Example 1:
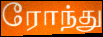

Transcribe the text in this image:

ரோந்து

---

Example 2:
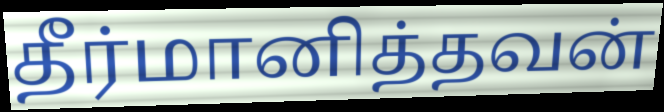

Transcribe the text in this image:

தீர்மானித்தவன்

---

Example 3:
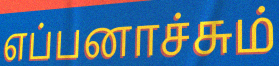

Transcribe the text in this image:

எப்பனாச்சும்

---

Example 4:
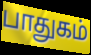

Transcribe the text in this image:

பாதுகம்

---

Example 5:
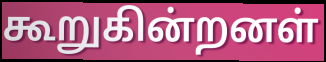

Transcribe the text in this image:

கூறுகின்றனள்